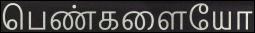
பெண்களையோ